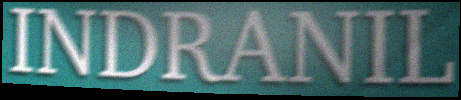
INDRANIL